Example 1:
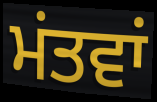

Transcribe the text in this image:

ਮਂਤਵਾਂ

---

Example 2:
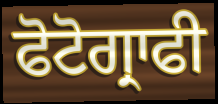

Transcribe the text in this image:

ਫੋਟੋਗ੍ਰਾਫੀ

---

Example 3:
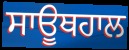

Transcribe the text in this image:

ਸਾਊਥਹਾਲ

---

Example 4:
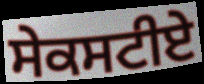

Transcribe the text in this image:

ਸੇਕਸਟੀਏ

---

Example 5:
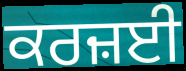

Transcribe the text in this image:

ਕਰਜ਼ਈ